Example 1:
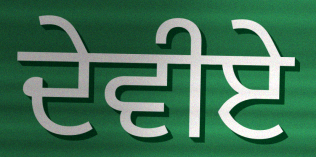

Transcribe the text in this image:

ਦੇਵੀਏ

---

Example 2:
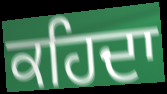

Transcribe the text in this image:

ਕਹਿਦਾ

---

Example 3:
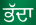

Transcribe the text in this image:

ਭੱਦਾ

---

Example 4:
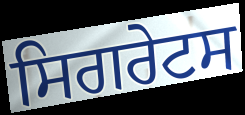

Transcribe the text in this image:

ਸਿਗਰੇਟਸ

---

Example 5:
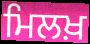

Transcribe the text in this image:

ਮਿਲਖ਼